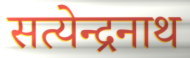
सत्येन्द्रनाथ